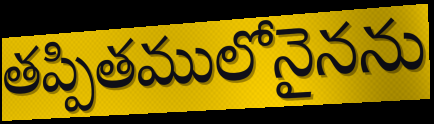
తప్పితములోనైనను